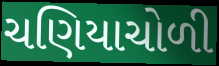
ચણિયાચોળી